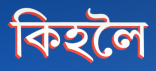
কিহলৈ